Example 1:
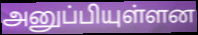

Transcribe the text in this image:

அனுப்பியுள்ளன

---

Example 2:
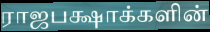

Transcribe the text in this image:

ராஜபக்ஷாக்களின்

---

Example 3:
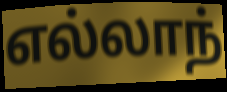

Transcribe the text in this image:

எல்லாந்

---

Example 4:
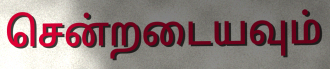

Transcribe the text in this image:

சென்றடையவும்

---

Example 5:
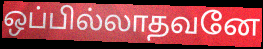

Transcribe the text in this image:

ஒப்பில்லாதவனே